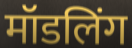
मॉडलिंग